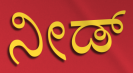
ನೀಡ್